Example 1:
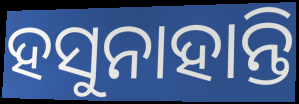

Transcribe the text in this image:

ହସୁନାହାନ୍ତି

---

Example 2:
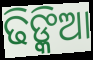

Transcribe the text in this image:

ଢିଙ୍କିଆ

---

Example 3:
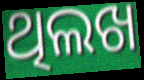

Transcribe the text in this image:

ଥିଲଖ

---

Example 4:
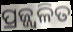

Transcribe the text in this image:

ପ୍ରଜ୍ଜ୍ବଳିତ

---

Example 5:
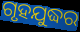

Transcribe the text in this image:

ଗୃହଯୁଦ୍ଧର